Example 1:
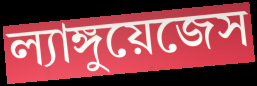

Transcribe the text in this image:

ল্যাঙ্গুয়েজেস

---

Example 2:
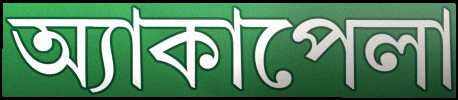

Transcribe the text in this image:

অ্যাকাপেলা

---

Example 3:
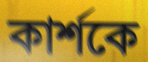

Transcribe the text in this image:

কার্শকে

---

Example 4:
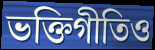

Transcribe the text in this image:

ভক্তিগীতিও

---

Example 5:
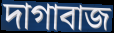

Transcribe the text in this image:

দাগাবাজ